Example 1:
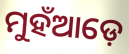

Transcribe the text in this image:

ମୁହଁଆଡ଼େ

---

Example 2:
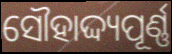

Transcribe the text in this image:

ସୌହାଦ୍ଦ୍ୟପୂର୍ଣ୍ଣ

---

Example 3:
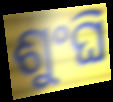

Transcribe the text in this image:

ଶୁଂଘି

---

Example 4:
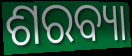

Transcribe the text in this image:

ଶରବ୍ୟା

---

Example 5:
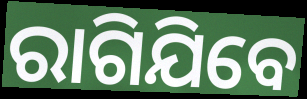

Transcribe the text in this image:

ରାଗିଯିବେ